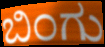
ಬಿಂಗು